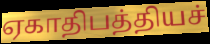
ஏகாதிபத்தியச்